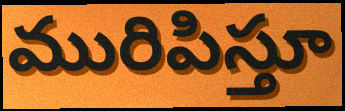
మురిపిస్తూ